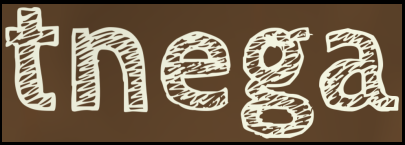
tnega